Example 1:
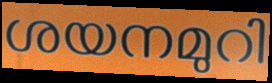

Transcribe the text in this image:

ശയനമുറി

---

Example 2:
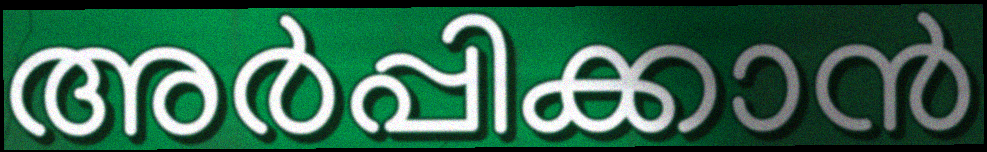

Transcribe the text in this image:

അർപ്പിക്കാൻ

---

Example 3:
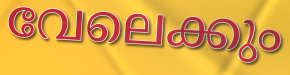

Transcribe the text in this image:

വേലെക്കും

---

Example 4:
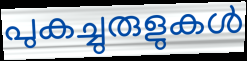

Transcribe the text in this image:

പുകച്ചുരുളുകൾ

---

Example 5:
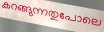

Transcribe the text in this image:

കറങ്ങുന്നതുപോലെ